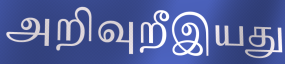
அறிவுறீஇயது